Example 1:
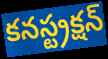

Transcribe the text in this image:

కనస్ట్రక్షన్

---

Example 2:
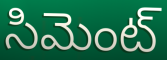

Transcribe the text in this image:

సిమెంట్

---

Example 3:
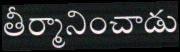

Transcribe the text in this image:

తీర్మానించాడు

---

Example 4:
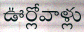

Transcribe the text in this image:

ఊర్లోవాళ్లు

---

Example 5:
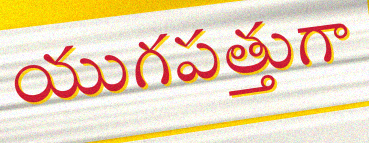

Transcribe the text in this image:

యుగపత్తుగా